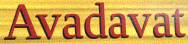
Avadavat